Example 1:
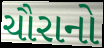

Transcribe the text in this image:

ચૌરાનો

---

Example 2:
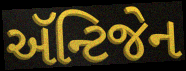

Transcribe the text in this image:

ઍન્ટિજેન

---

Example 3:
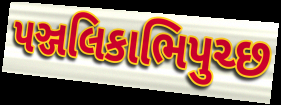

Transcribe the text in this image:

પઞ્જલિકાભિપુચ્છ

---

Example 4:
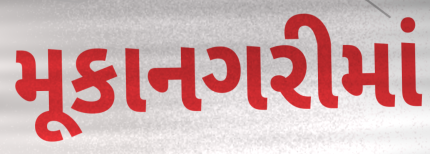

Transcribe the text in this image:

મૂકાનગરીમાં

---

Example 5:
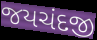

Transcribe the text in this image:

જયચંદજી